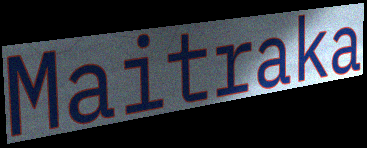
Maitraka